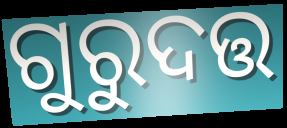
ଗୁରୁଦତ୍ତ